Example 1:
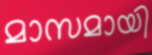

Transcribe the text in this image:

മാസമായി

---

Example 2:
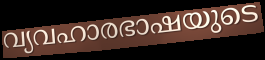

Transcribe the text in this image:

വ്യവഹാരഭാഷയുടെ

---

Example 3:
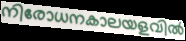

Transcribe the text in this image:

നിരോധനകാലയളവിൽ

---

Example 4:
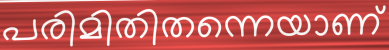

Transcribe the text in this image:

പരിമിതിതന്നെയാണ്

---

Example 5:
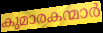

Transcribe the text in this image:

കുമാരകന്മാർ